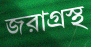
জরাগ্রস্থ